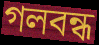
গলবন্ধ